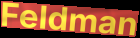
Feldman